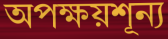
অপক্ষয়শূন্য